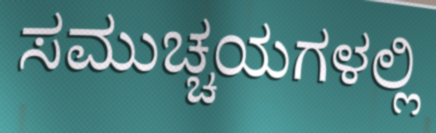
ಸಮುಚ್ಚಯಗಳಲ್ಲಿ